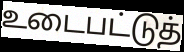
உடைபட்டுத்